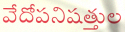
వేదోపనిషత్తుల